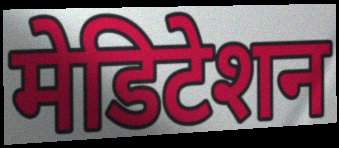
मेडिटेशन